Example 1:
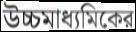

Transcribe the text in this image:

উচ্চমাধ্যমিকের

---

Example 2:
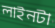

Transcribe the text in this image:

লাইনটা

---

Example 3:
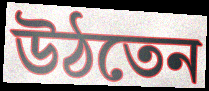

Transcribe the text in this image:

উঠতেন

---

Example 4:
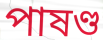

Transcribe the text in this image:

পাষণ্ড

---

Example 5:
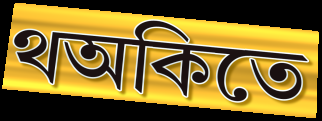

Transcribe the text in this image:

থঅকিতে